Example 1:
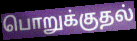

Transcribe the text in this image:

பொறுக்குதல்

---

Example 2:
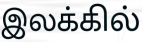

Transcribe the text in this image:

இலக்கில்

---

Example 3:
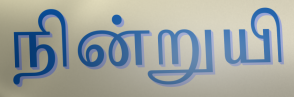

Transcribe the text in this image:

நின்றுயி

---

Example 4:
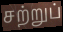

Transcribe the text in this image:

சற்றுப்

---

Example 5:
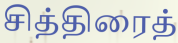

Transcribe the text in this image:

சித்திரைத்